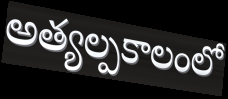
అత్యల్పకాలంలో